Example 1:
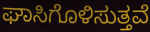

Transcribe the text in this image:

ಘಾಸಿಗೊಳಿಸುತ್ತವೆ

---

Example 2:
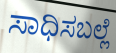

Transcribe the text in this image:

ಸಾಧಿಸಬಲ್ಲೆ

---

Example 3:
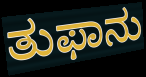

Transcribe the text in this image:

ತುಫಾನು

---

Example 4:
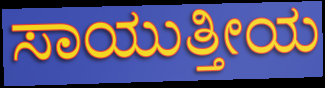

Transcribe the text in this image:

ಸಾಯುತ್ತೀಯ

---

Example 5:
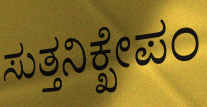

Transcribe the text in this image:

ಸುತ್ತನಿಕ್ಖೇಪಂ